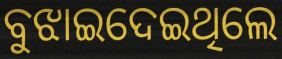
ବୁଝାଇଦେଇଥିଲେ